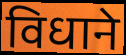
विधाने